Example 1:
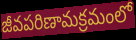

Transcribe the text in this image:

జీవపరిణామక్రమంలో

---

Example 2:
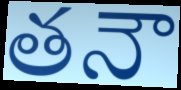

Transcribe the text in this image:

తనౌ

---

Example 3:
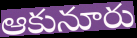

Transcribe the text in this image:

ఆకునూరు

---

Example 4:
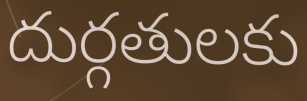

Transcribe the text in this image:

దుర్గతులకు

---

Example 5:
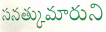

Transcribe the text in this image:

సనత్కుమారుని